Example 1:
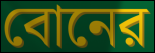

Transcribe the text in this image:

বোনের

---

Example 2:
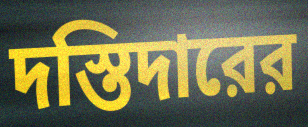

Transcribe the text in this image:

দস্তিদারের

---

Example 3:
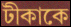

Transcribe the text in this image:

টীকাকে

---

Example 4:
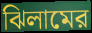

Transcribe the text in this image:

ঝিলামের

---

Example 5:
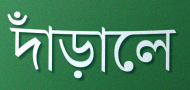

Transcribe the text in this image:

দাঁড়ালে